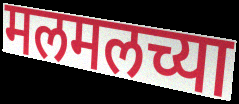
मलमलच्या